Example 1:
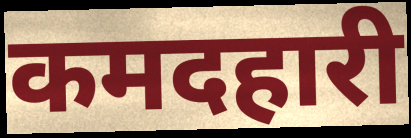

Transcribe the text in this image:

कमदहारी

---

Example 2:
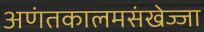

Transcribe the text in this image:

अणंतकालमसंखेज्जा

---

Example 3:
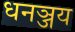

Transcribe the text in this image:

धनञ्जय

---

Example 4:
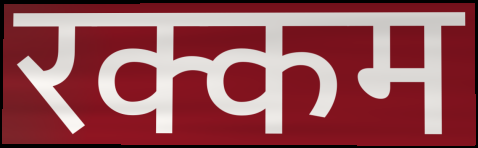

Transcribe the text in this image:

रक्कम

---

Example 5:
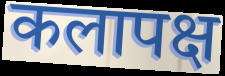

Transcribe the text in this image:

कलापक्ष